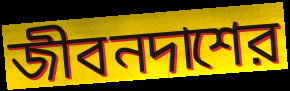
জীবনদাশের